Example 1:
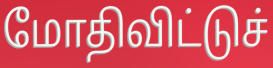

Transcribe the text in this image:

மோதிவிட்டுச்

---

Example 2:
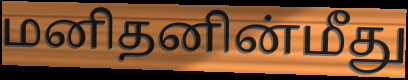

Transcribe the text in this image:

மனிதனின்மீது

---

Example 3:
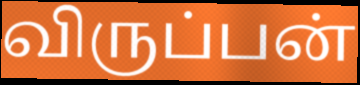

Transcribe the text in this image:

விருப்பன்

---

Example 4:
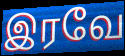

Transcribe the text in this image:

இரவே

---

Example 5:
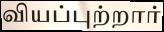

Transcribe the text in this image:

வியப்புற்றார்